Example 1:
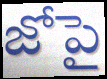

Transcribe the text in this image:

జోపై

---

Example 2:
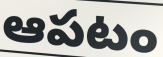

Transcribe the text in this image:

ఆపటం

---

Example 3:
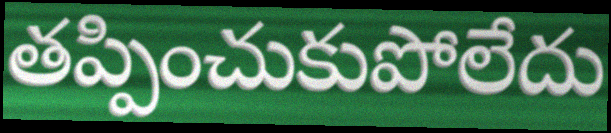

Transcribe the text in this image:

తప్పించుకుపోలేదు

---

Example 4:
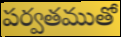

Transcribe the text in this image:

పర్వతముతో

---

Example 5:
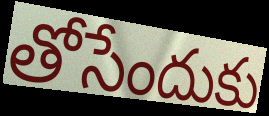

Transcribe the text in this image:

తోసేందుకు